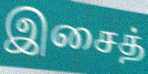
இசைத்